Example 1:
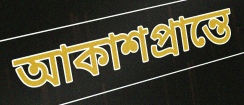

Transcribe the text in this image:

আকাশপ্রান্তে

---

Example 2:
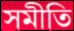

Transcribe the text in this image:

সমীতি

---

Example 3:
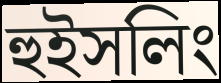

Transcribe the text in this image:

হুইসলিং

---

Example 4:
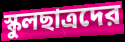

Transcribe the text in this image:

স্কুলছাত্রদের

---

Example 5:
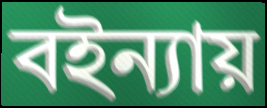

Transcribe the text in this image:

বইন্যায়